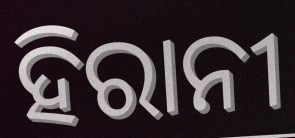
ହିରାନୀ